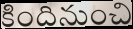
కిందినుంచి